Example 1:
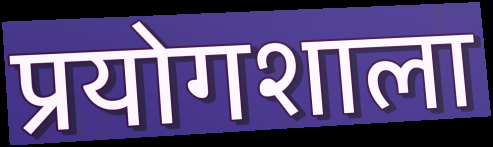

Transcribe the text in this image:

प्रयोगशाला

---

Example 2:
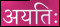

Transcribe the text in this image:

अयतिः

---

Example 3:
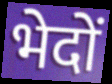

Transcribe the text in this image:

भेदों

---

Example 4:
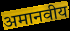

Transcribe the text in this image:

अमानवीय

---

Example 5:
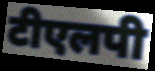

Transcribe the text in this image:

टीएलपी